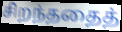
சிறந்ததைத்